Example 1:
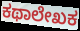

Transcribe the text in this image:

ಕಥಾಲೇಖಕ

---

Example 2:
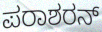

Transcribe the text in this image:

ಪರಾಶರನ್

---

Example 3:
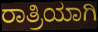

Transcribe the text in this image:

ರಾತ್ರಿಯಾಗಿ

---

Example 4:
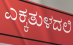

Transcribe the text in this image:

ಎಕ್ಕತುಳದಲಿ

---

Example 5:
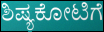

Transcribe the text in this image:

ಶಿಷ್ಯಕೋಟಿಗೆ